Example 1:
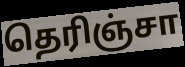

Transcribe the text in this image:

தெரிஞ்சா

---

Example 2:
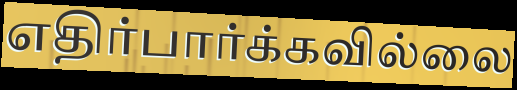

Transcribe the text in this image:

எதிர்பார்க்கவில்லை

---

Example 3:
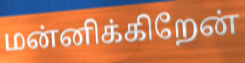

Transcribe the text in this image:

மன்னிக்கிறேன்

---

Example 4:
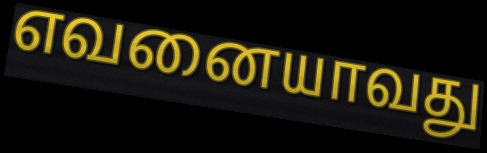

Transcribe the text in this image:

எவனையாவது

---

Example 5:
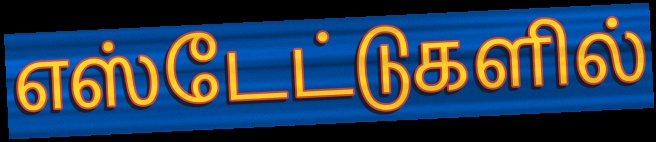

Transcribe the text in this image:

எஸ்டேட்டுகளில்